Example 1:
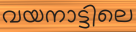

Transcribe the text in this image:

വയനാട്ടിലെ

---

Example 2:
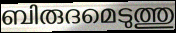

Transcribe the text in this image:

ബിരുദമെടുത്തു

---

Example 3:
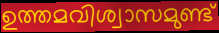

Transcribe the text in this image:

ഉത്തമവിശ്വാസമുണ്ട്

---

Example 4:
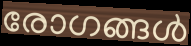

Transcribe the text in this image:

രോഗങ്ങൾ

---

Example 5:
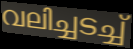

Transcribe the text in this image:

വലിച്ചടച്ച്